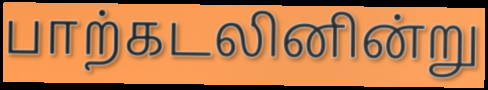
பாற்கடலினின்று